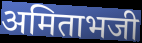
अमिताभजी